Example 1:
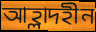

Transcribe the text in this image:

আহ্লাদহীন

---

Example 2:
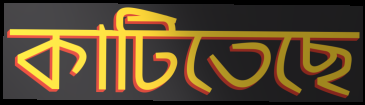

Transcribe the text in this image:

কাটিতেছে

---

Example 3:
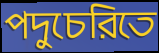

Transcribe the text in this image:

পদুচেরিতে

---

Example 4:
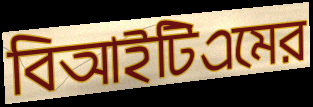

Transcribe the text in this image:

বিআইটিএমের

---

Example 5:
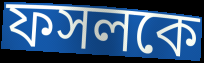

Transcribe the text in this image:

ফসলকে